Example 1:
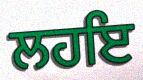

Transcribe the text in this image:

ਲਹਇ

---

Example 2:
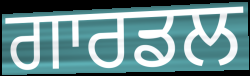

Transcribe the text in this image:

ਗਾਰਡਲ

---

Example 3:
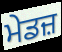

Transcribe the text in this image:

ਮੇਡਜ਼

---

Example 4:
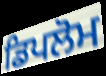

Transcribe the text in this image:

ਡਿਪਲੋਮ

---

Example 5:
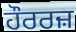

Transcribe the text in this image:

ਹੌਰਰਜ਼